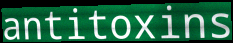
antitoxins